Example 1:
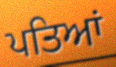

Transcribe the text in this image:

ਪਤਿਆਂ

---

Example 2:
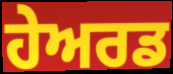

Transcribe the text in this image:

ਹੇਅਰਡ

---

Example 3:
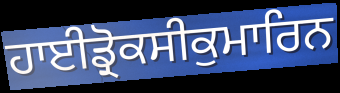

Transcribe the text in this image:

ਹਾਈਡ੍ਰੋਕਸੀਕੁਮਾਰਿਨ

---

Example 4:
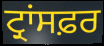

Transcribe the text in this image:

ਟ੍ਰਾਂਸਫ਼ਰ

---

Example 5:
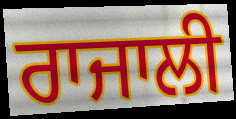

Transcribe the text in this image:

ਰਾਜਾਲੀ